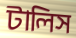
টালিস